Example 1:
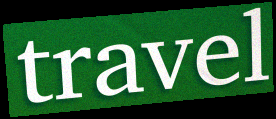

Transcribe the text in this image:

travel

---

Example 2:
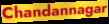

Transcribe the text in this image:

Chandannagar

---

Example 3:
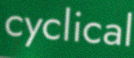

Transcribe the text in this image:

cyclical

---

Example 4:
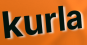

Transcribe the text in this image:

kurla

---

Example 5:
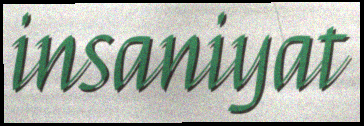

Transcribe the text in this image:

insaniyat